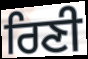
ਰਿਣੀ